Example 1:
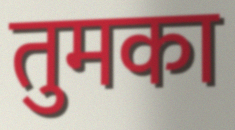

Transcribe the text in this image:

तुमका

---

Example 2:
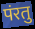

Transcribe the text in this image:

पंरतु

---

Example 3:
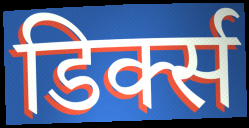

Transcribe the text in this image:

डिर्क्स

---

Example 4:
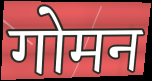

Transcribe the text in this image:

गोमन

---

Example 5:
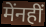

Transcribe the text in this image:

मेंनहीं